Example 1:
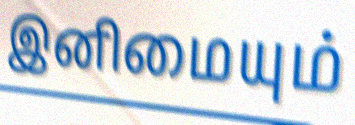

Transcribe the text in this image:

இனிமையும்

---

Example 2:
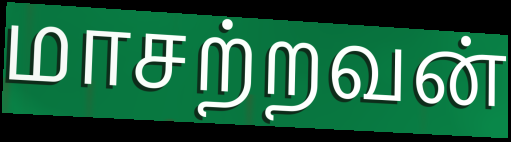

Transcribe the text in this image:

மாசற்றவன்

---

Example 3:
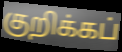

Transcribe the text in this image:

குறிக்கப்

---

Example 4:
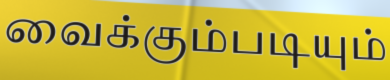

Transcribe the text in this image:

வைக்கும்படியும்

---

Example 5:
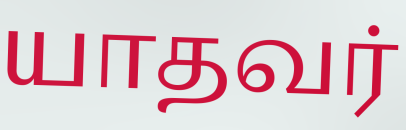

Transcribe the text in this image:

யாதவர்